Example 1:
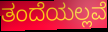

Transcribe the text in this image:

ತಂದೆಯಲ್ಲವೆ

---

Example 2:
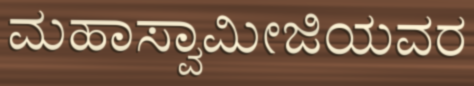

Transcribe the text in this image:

ಮಹಾಸ್ವಾಮೀಜಿಯವರ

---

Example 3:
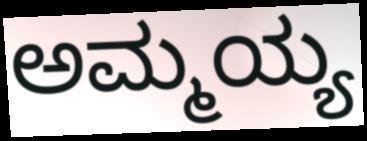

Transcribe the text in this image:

ಅಮ್ಮಯ್ಯ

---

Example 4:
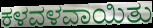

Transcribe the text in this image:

ಕಳವಳವಾಯಿತು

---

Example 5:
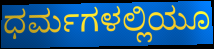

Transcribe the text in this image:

ಧರ್ಮಗಳಲ್ಲಿಯೂ